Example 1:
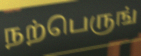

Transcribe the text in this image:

நற்பெருங்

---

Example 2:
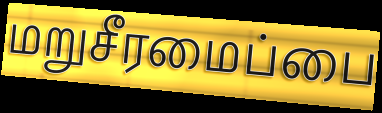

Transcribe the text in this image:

மறுசீரமைப்பை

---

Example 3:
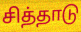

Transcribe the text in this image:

சித்தாடு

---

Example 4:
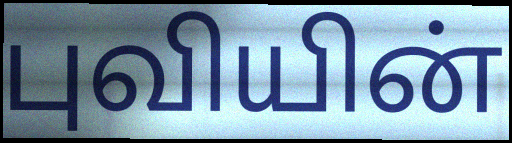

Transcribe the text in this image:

புவியின்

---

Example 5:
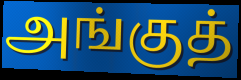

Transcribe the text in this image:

அங்குத்